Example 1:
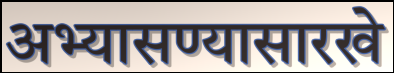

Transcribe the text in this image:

अभ्यासण्यासारखे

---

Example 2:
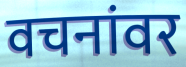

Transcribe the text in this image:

वचनांवर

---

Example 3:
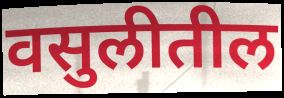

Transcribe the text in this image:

वसुलीतील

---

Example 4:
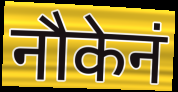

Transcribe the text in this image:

नौकेनं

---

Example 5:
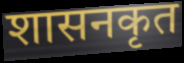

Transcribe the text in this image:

शासनकृत